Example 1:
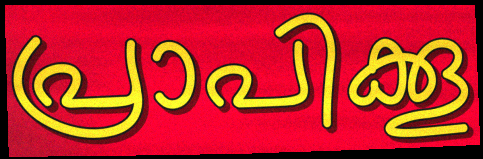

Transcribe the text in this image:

പ്രാപിക്കൂ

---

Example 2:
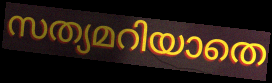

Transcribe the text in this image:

സത്യമറിയാതെ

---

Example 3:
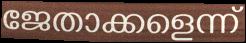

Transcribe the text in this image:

ജേതാക്കളെന്ന്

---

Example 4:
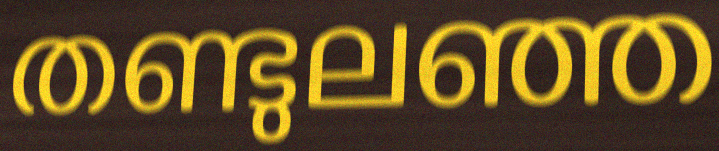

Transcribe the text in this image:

തണ്ടുലഞ്ഞ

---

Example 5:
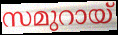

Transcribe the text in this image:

സമുറായ്